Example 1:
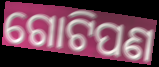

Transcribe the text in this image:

ଗୋଟିପଣ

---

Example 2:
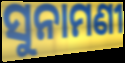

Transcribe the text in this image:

ସୁନାମଣୀ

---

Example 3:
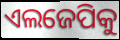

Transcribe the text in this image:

ଏଲଜେପିକୁ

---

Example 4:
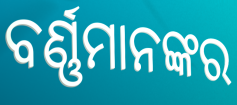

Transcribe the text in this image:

ବର୍ଣ୍ଣମାନଙ୍କର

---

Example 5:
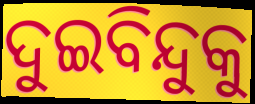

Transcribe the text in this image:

ଦୁଇବିନ୍ଦୁକୁ